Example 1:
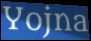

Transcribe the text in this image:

Yojna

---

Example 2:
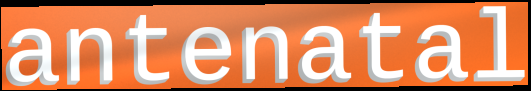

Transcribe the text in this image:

antenatal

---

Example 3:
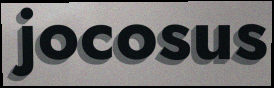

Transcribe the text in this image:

jocosus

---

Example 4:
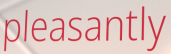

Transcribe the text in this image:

pleasantly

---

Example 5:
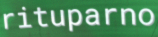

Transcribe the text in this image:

rituparno